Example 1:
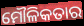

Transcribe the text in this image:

ମୌଳିକତାର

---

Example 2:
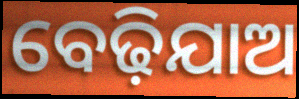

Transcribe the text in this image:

ବେଢ଼ିଯାଅ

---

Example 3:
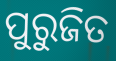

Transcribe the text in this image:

ପୁରୁଜିତ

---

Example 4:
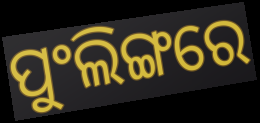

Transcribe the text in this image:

ପୁଂଲିଙ୍ଗରେ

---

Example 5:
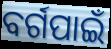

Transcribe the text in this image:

ବର୍ଗପାଇଁ